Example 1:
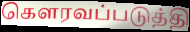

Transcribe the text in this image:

கெளரவப்படுத்தி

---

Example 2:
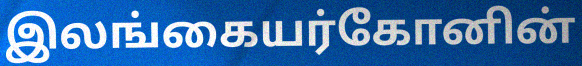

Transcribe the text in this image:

இலங்கையர்கோனின்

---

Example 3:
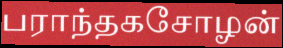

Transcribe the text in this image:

பராந்தகசோழன்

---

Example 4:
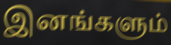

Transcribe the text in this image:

இனங்களும்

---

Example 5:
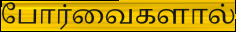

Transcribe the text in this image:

போர்வைகளால்